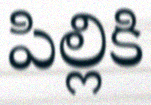
పిల్లికి